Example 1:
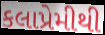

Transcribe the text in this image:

કલાપ્રેમીથી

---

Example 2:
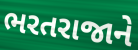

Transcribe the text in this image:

ભરતરાજાને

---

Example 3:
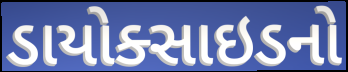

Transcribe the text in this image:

ડાયોક્સાઇડનો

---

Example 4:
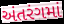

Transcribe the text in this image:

અંતરંગમાં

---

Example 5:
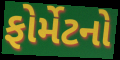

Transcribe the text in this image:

ફોર્મેટનો